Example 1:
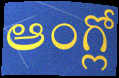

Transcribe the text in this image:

ఆంగ్లో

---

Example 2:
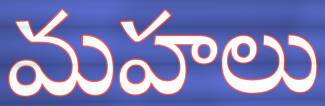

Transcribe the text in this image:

మహలు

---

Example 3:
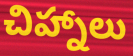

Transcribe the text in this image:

చిహ్నాలు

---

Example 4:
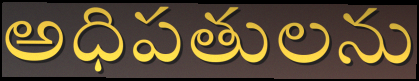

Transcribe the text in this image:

అధిపతులను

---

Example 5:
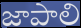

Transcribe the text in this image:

జాపాలి